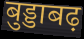
बुड्डाबढ़